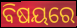
ବିଷୟରେ